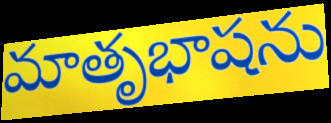
మాతృభాషను